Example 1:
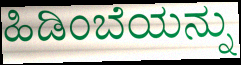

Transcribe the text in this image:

ಹಿಡಿಂಬೆಯನ್ನು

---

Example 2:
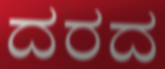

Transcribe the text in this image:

ದರದ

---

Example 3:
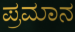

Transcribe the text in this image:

ಪ್ರಮಾನ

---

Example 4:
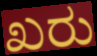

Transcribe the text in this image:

ಖರು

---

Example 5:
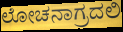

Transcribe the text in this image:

ಲೋಚನಾಗ್ರದಲಿ